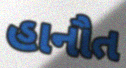
હાનૌત